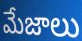
మేజాలు